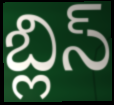
బ్లిస్